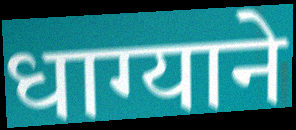
धाग्याने